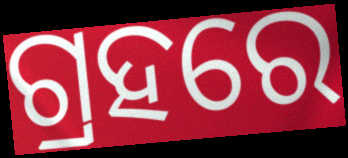
ଗ୍ରହରେ